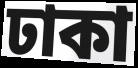
ঢাকা